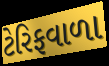
ટેરિફવાળા